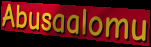
Abusaalomu